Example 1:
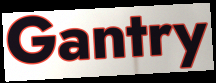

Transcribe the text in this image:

Gantry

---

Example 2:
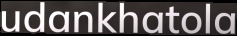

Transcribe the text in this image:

udankhatola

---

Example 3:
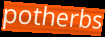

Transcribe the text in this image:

potherbs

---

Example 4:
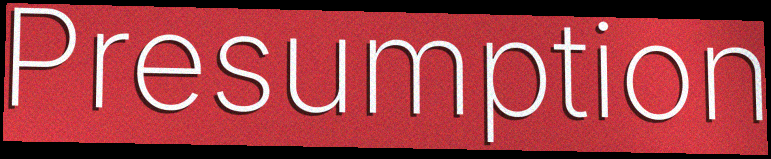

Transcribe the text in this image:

Presumption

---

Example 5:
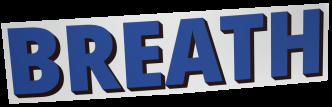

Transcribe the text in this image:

BREATH